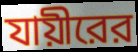
যায়ীরের